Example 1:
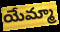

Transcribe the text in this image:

యేమ్మా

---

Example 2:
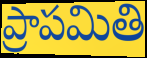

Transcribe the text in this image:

ప్రాపమితి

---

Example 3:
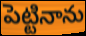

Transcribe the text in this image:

పెట్టినాను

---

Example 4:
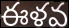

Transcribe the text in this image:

ఈళవ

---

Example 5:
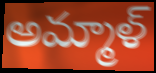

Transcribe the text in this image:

అమ్మాళ్